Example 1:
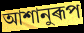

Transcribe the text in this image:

আশানুৰূপ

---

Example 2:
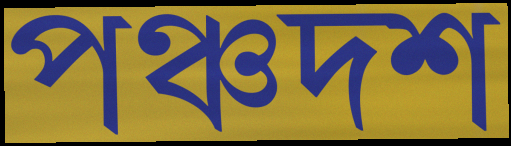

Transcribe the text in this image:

পঞ্চদশ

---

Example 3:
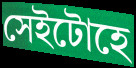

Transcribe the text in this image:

সেইটোহে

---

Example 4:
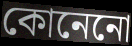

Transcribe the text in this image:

কোনেনো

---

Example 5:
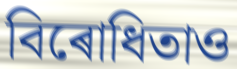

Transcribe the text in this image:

বিৰোধিতাও